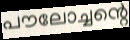
പൗലോച്ചന്റെ